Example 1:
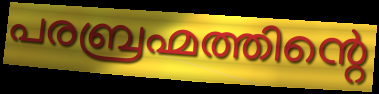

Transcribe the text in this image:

പരബ്രഹ്മത്തിന്റെ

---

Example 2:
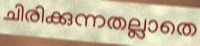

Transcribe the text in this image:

ചിരിക്കുന്നതല്ലാതെ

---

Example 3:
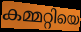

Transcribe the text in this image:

കമ്മറ്റിയെ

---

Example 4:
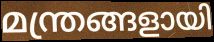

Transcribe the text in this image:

മന്ത്രങ്ങളായി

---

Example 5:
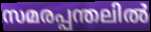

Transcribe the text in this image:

സമരപ്പന്തലിൽ